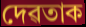
দেৱতাক